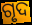
ଗୃଦ